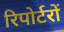
रिपोर्टरों